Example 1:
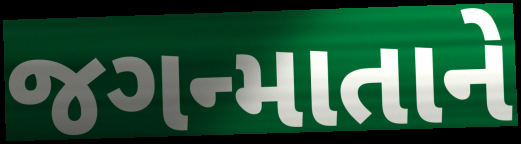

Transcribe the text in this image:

જગન્માતાને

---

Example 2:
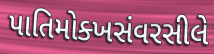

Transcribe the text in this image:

પાતિમોક્ખસંવરસીલે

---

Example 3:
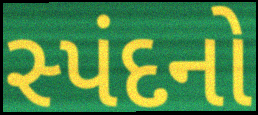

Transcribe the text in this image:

સ્પંદનો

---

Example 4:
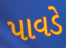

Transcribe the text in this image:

પાવડે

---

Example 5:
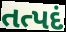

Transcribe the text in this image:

તત્પદં